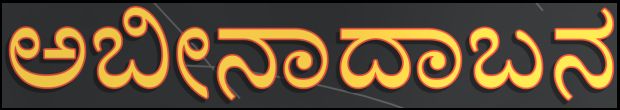
ಅಬೀನಾದಾಬನ